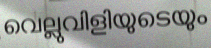
വെല്ലുവിളിയുടെയും